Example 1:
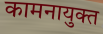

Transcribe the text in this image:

कामनायुक्त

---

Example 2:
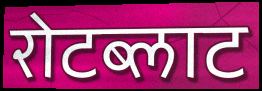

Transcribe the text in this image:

रोटब्लाट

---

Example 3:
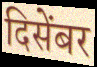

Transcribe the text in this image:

दिसेंबर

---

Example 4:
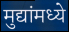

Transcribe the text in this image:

मुद्यांमध्ये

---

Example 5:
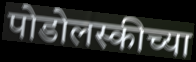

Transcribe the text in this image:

पोडोलस्कीच्या